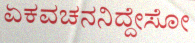
ಏಕವಚನನಿದ್ದೇಸೋ